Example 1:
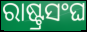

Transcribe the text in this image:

ରାଷ୍ଟ୍ରସଂଘ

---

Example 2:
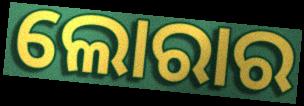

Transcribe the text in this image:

ଲୋରାର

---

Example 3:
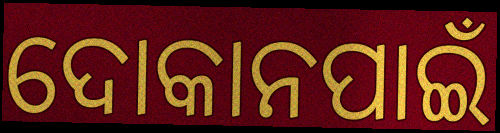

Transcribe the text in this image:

ଦୋକାନପାଇଁ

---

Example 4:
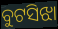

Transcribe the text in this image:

ବୁଟସିଝା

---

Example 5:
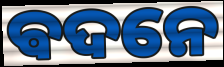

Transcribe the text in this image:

ଵଦନେ